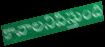
కావాలనిపిస్తుంది